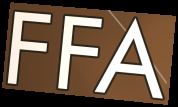
FFA